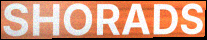
SHORADS